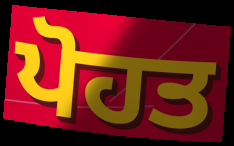
ਪੋਹਤ